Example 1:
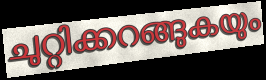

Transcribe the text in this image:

ചുറ്റിക്കറങ്ങുകയും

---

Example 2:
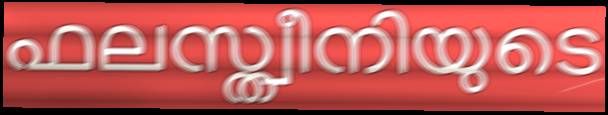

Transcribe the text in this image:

ഫലസ്ത്വീനിയുടെ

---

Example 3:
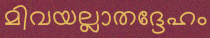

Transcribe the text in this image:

മിവയല്ലാതദ്ദേഹം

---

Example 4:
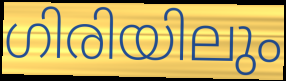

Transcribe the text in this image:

ഗിരിയിലും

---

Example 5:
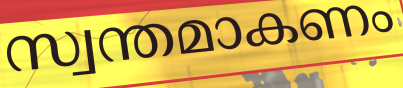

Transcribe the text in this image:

സ്വന്തമാകണം